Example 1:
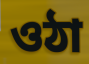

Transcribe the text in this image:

ওঠা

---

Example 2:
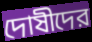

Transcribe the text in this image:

দোষীদের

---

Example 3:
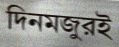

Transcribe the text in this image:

দিনমজুরই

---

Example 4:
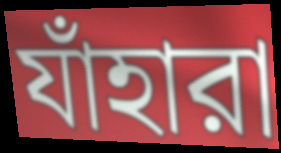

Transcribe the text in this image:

যাঁহারা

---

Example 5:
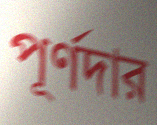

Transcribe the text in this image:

পূর্ণদার